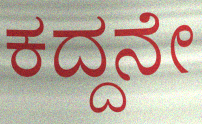
ಕದ್ದನೇ